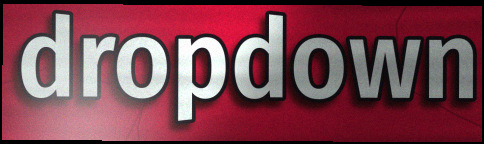
dropdown